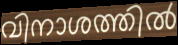
വിനാശത്തിൽ